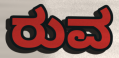
ರುವ